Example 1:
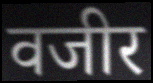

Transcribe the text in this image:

वजीर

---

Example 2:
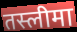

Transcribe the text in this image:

तस्लीमा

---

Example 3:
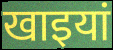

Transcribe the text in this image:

खाइयां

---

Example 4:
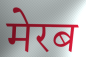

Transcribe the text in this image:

मेरब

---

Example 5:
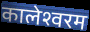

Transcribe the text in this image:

कालेश्वरम